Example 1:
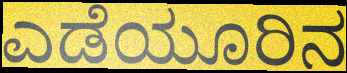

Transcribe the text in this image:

ಎಡೆಯೂರಿನ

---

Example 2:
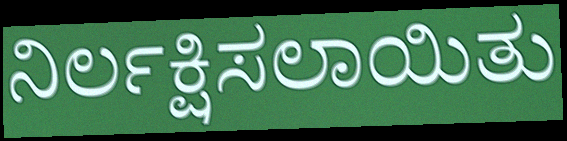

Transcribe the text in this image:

ನಿರ್ಲಕ್ಷಿಸಲಾಯಿತು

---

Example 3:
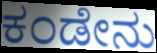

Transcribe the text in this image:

ಕಂಡೇನು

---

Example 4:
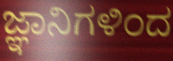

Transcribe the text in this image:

ಜ್ಞಾನಿಗಳಿಂದ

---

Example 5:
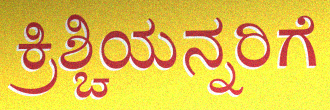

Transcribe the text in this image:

ಕ್ರಿಶ್ಚಿಯನ್ನರಿಗೆ